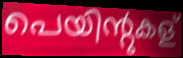
പെയിന്റുകള്